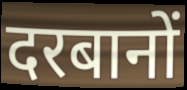
दरबानों